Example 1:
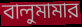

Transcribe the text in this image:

বালুমামার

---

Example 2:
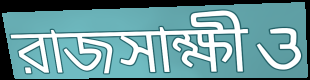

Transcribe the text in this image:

রাজসাক্ষীও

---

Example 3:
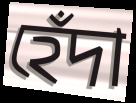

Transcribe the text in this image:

হেঁদা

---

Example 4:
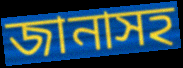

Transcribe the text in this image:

জানাসহ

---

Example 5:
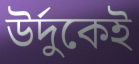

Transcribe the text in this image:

উর্দুকেই